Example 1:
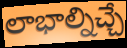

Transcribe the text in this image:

లాభాల్నిచ్చే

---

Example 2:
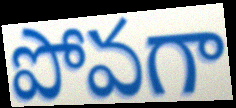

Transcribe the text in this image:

పోవగా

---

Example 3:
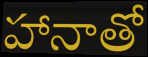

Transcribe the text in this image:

హానాతో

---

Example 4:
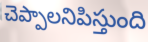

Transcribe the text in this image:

చెప్పాలనిపిస్తుంది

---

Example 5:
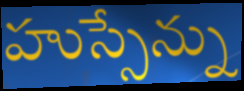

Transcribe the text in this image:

హుస్సేన్ను